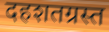
दहशतग्रस्त